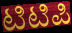
ಟಿಟಿಪಿ